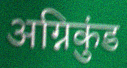
अग्निकुंड